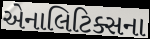
એનાલિટિક્સના